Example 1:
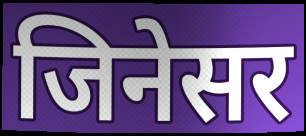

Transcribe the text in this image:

जिनेसर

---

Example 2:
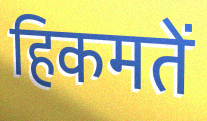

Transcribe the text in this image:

हिकमतें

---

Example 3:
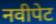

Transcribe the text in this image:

नवीपेट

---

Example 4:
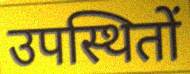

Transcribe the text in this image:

उपस्थितों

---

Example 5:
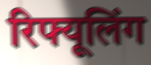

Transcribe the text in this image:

रिफ्यूलिंग